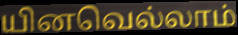
யினவெல்லாம்